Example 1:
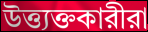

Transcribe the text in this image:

উত্ত্যক্তকারীরা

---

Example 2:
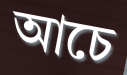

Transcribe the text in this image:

আচে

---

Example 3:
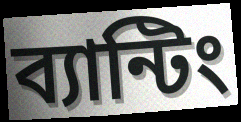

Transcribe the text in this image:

ব্যান্টিং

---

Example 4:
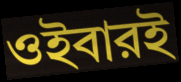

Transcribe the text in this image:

ওইবারই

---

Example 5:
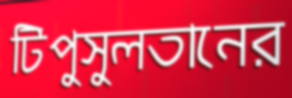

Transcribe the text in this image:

টিপুসুলতানের